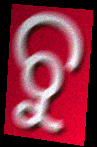
ଚୁ